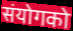
संयोगको